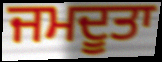
ਜਮਦੂਤਾ